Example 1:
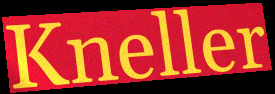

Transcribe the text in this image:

Kneller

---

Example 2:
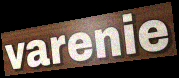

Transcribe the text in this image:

varenie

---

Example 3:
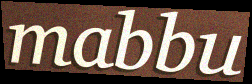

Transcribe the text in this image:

mabbu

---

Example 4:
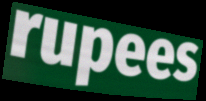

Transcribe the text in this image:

rupees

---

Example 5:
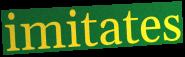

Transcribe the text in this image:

imitates